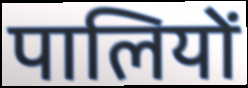
पालियों